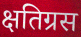
क्षतिग्रस